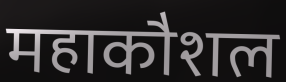
महाकौशल